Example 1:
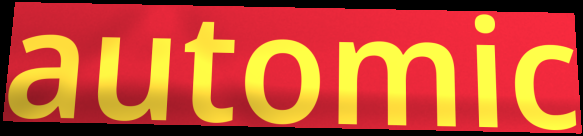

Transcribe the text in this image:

automic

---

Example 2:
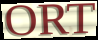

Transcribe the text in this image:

ORT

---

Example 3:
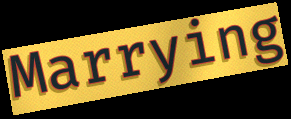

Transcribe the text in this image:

Marrying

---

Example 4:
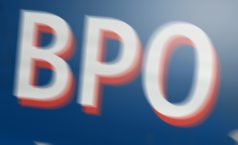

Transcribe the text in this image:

BPO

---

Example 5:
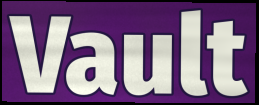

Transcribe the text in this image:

Vault